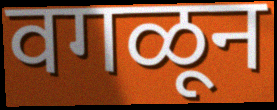
वगळून